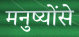
मनुष्योंसे